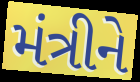
મંત્રીને